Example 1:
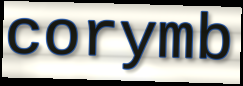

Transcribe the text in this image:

corymb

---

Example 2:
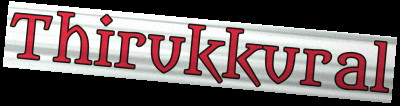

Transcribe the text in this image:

Thirukkural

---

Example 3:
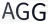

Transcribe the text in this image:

AGG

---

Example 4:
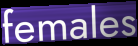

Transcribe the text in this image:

females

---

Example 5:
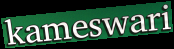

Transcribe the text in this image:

kameswari